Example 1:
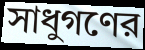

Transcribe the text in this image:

সাধুগণের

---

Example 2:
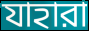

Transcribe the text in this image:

যাহারা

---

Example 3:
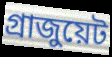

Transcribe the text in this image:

গ্রাজুয়েট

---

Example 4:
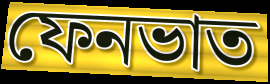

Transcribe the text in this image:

ফেনভাত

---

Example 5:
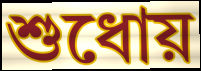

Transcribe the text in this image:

শুধোয়